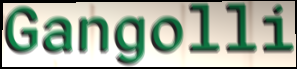
Gangolli